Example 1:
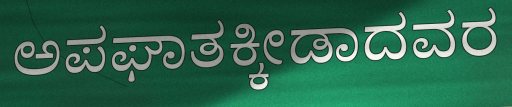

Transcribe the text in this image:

ಅಪಘಾತಕ್ಕೀಡಾದವರ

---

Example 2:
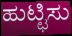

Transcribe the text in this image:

ಹುಟ್ಟಿಸು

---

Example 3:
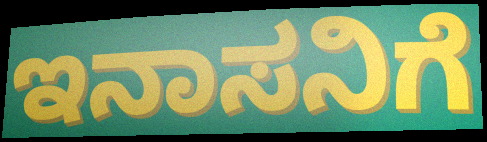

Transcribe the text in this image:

ಇನಾಸನಿಗೆ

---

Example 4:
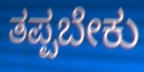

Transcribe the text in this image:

ತಪ್ಪಬೇಕು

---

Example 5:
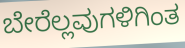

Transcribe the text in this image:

ಬೇರೆಲ್ಲವುಗಳಿಗಿಂತ